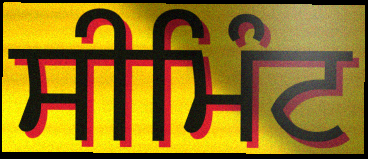
ਸੀਮਿੰਟ